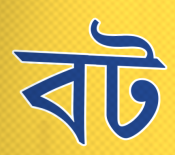
বট